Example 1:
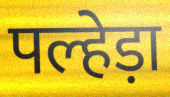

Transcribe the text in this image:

पल्हेड़ा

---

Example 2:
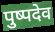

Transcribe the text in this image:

पुष्पदेव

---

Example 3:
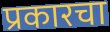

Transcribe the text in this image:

प्रकारचा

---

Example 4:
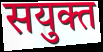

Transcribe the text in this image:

सयुक्‍त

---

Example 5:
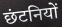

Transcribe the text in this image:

छंटनियों